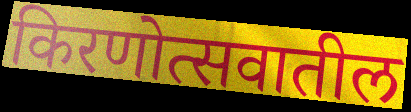
किरणोत्सवातील